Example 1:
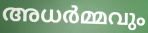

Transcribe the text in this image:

അധർമ്മവും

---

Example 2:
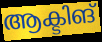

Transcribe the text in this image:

ആക്ടിങ്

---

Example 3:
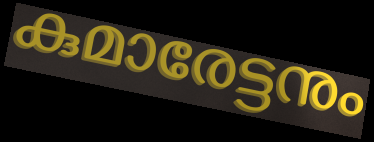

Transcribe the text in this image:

കുമാരേട്ടനും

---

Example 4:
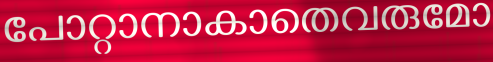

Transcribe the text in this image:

പോറ്റാനാകാതെവരുമോ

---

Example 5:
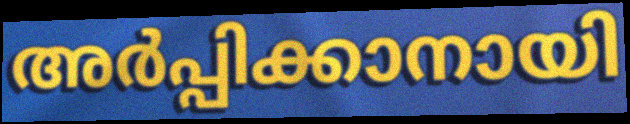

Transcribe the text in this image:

അർപ്പിക്കാനായി